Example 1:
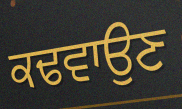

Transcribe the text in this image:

ਕਢਵਾਉਣ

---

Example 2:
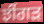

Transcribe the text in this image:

ਝੀਂਗੜ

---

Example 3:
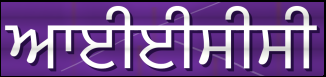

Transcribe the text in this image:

ਆਈਈਸੀਸੀ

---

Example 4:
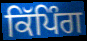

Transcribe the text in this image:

ਕਿੱਪਿੰਗ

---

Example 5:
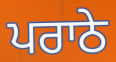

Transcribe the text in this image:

ਪਰਾਠੇ